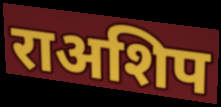
राअशिप